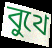
বুথে